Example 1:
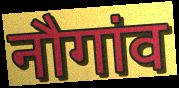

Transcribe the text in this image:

नौगांव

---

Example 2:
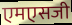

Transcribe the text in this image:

एमएसजी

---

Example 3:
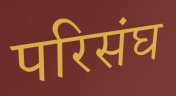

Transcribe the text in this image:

परिसंघ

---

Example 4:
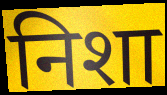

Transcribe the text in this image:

निशा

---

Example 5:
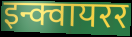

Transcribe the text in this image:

इन्क्वायरर